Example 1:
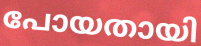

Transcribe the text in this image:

പോയതായി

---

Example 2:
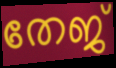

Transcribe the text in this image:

തേജ്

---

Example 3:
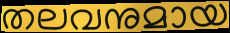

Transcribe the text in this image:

തലവനുമായ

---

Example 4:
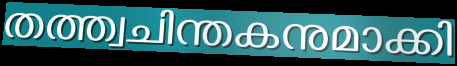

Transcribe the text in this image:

തത്ത്വചിന്തകനുമാക്കി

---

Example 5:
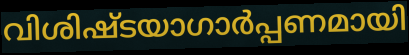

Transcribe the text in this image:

വിശിഷ്ടയാഗാർപ്പണമായി